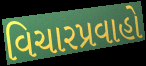
વિચારપ્રવાહો